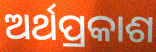
ଅର୍ଥପ୍ରକାଶ